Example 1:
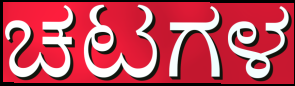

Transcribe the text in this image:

ಚಟಗಳ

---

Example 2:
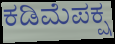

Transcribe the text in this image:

ಕಡಿಮೆಪಕ್ಷ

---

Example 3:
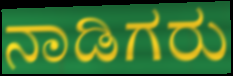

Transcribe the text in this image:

ನಾಡಿಗರು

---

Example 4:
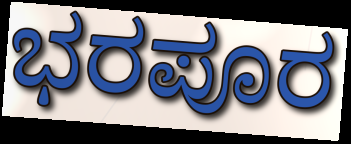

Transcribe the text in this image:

ಭರಪೂರ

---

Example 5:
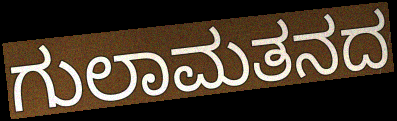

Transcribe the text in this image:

ಗುಲಾಮತನದ